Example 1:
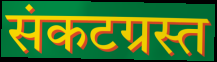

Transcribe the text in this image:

संकटग्रस्‍त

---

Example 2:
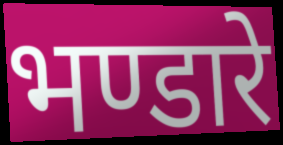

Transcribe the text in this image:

भण्डारे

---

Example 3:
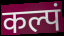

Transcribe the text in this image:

कल्पं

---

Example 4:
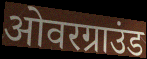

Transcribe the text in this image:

ओवरग्राउंड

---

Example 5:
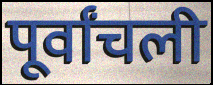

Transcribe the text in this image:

पूर्वांचली